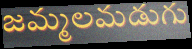
జమ్మలమడుగు